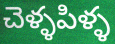
చెళ్ళపిళ్ళ